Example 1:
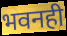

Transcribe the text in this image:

भवनही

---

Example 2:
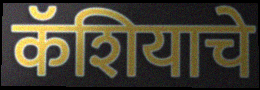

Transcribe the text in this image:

कॅशियाचे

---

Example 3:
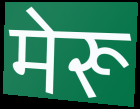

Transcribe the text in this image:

मेरू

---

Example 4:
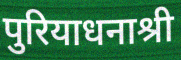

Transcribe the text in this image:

पुरियाधनाश्री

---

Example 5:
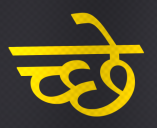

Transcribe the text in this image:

च्छे